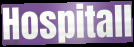
Hospitall